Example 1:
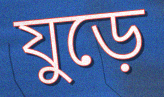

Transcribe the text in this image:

যুড়ে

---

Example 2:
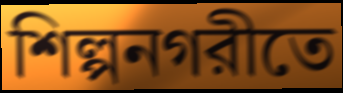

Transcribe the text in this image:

শিল্পনগরীতে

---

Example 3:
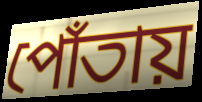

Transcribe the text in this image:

পোঁতায়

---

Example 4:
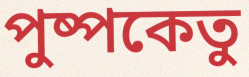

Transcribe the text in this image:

পুষ্পকেতু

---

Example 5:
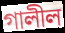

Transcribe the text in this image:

গালীল